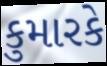
કુમારકે